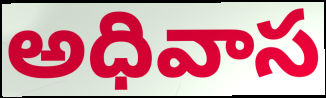
అధివాస